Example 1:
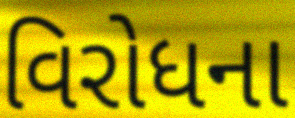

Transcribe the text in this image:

વિરોધના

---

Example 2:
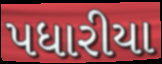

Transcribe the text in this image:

પધારીયા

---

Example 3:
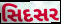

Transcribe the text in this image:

સિદસર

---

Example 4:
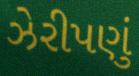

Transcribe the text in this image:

ઝેરીપણું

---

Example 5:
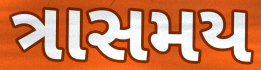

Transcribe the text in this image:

ત્રાસમય